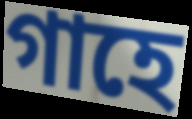
গাহে